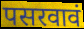
पसरवावं